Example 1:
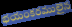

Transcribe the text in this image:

భయంకరములైన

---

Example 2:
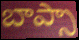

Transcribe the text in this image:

బాప్సా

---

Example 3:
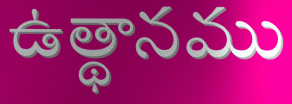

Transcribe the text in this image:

ఉత్థానము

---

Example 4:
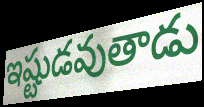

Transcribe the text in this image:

ఇష్టుడవుతాడు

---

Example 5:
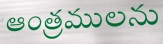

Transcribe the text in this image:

ఆంత్రములను